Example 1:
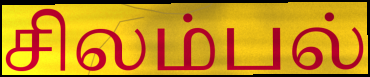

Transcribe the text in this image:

சிலம்பல்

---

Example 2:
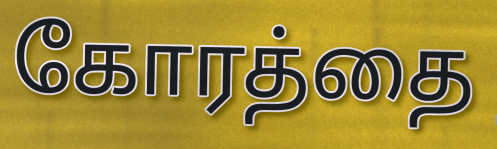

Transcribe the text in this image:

கோரத்தை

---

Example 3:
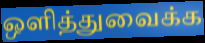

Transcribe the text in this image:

ஒளித்துவைக்க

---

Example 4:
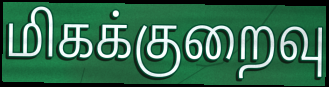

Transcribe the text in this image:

மிகக்குறைவு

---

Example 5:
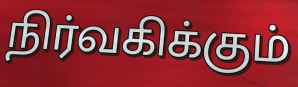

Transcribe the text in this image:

நிர்வகிக்கும்